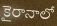
కైరానాలో